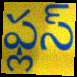
ఫ్లస్